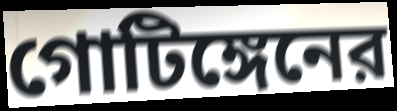
গোটিঙ্গেনের